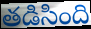
తడిసింది